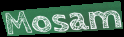
Mosam